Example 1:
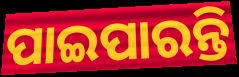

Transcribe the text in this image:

ପାଇପାରନ୍ତି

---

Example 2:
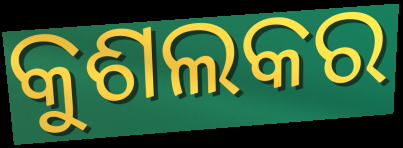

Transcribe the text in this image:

କୁଶଲକର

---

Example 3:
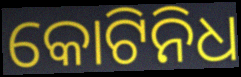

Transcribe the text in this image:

କୋଟିନିଧ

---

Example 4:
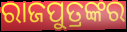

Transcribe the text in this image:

ରାଜପୁତ୍ରଙ୍କର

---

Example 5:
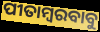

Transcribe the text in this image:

ପୀତାମ୍ବରବାବୁ